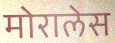
मोरालेस